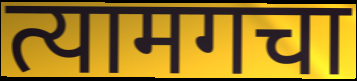
त्यामगचा